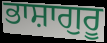
ਭਾਸ਼ਾਗੁਰੂ